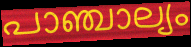
പാഞ്ചാല്യം